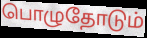
பொழுதோடும்